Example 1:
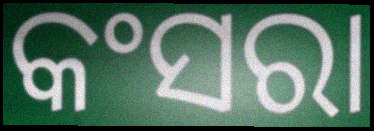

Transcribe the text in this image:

କଂସରା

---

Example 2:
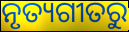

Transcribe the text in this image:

ନୃତ୍ୟଗୀତରୁ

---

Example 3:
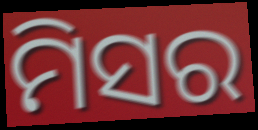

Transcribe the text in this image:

ମିସର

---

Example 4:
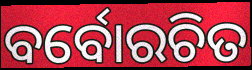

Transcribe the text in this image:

ବର୍ବୋରଚିତ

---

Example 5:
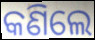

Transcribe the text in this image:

କଣିଲେ